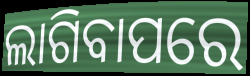
ଲାଗିବାପରେ